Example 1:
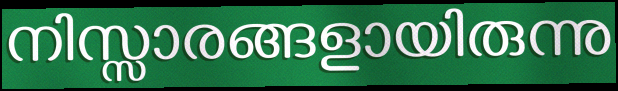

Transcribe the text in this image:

നിസ്സാരങ്ങളായിരുന്നു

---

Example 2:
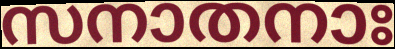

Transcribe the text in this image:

സനാതനാഃ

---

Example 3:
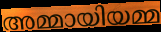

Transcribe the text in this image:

അമ്മായിയമ്മ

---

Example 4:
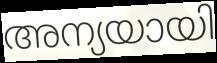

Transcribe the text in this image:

അന്യയായി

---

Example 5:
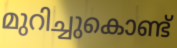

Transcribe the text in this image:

മുറിച്ചുകൊണ്ട്